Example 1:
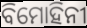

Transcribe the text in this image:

ବିମୋହିନୀ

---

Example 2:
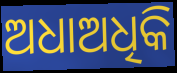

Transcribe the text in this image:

ଅଧାଅଧିକି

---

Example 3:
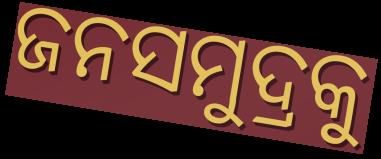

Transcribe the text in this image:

ଜନସମୁଦ୍ରକୁ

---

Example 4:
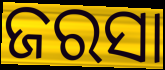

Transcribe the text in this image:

ଜରସା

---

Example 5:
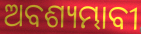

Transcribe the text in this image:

ଅବଶ୍ୟମ୍ଭାବୀ